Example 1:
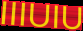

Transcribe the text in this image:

IIIUIU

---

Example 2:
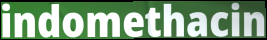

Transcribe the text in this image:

indomethacin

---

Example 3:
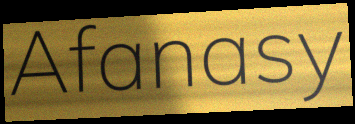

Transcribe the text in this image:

Afanasy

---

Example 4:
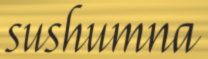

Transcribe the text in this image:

sushumna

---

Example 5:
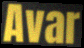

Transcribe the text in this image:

Avar